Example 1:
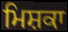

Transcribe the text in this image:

ਮਿਸ਼ਕਾ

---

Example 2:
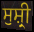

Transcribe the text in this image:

ਸੁਸ਼੍ਰੀ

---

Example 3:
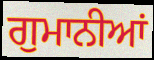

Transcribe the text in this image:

ਗੁਮਾਨੀਆਂ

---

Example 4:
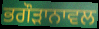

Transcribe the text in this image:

ਭਗੌੜਾਨਾਵਲ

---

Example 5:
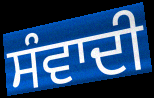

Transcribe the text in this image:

ਸੰਵਾਦੀ